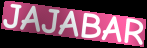
JAJABAR